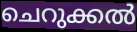
ചെറുക്കൽ